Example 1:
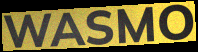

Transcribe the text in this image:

WASMO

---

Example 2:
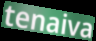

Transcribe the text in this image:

tenaiva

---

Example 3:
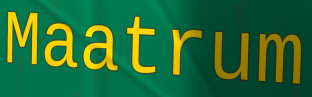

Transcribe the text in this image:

Maatrum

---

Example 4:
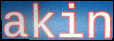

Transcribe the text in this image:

akin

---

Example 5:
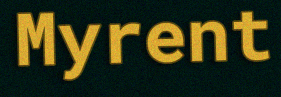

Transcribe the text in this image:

Myrent